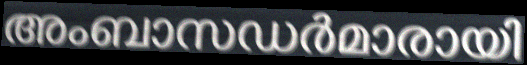
അംബാസഡർമാരായി